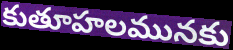
కుతూహలమునకు